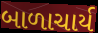
બાળાચાર્ય